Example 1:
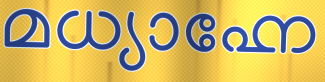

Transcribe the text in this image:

മധ്യാഹ്നേ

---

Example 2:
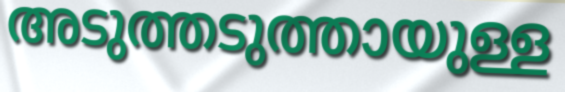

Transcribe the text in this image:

അടുത്തടുത്തായുള്ള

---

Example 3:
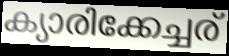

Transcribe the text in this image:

ക്യാരിക്കേച്ചര്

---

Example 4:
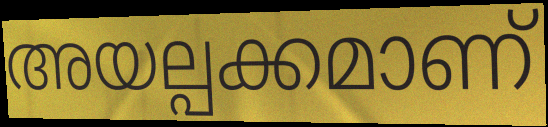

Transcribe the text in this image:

അയല്പക്കമാണ്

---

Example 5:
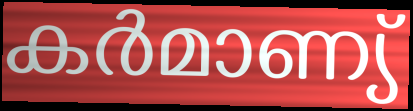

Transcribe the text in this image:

കർമാണ്യ്